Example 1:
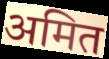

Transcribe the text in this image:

अमित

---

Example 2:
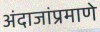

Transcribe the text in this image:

अंदाजांप्रमाणे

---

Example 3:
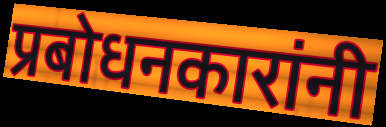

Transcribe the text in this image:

प्रबोधनकारांनी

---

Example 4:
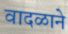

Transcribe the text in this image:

वादळाने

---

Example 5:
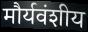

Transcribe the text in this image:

मौर्यवंशीय